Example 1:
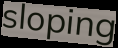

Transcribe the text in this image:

sloping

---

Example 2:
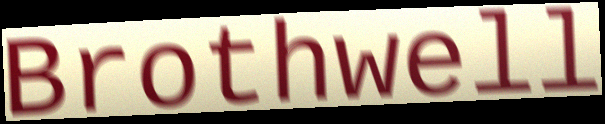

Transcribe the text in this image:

Brothwell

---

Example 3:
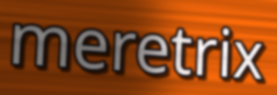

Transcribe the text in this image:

meretrix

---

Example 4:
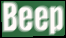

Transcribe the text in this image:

Beep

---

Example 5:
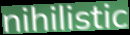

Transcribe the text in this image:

nihilistic